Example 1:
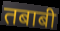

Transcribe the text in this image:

तबाबी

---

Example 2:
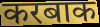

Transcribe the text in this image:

करबाक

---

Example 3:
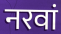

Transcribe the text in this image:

नरवां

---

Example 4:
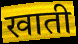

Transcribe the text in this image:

खाती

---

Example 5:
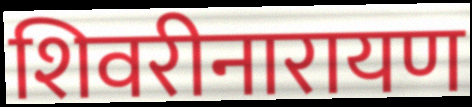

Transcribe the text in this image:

शिवरीनारायण